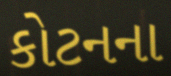
કોટનના